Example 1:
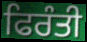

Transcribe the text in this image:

ਫਿਰੰਤੀ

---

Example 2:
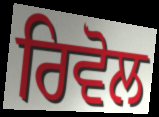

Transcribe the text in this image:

ਰਿਵੋਲ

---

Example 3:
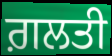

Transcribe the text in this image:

ਗ਼ਲਤੀ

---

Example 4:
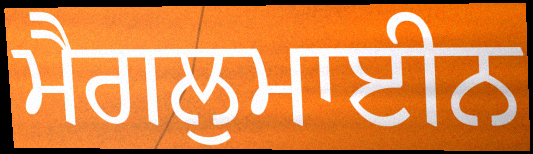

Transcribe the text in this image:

ਮੈਗਲੁਮਾਈਨ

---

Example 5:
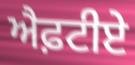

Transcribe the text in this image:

ਐਫ਼ਟੀਏ